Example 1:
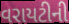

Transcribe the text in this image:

વરાયટીની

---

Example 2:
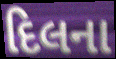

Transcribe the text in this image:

દિલના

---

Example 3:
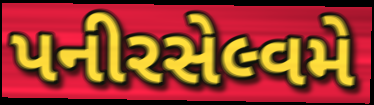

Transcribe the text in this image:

પનીરસેલ્વમે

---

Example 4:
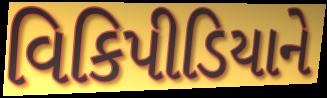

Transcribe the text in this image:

વિકિપીડિયાને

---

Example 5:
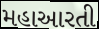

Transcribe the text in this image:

મહાઆરતી